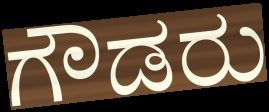
ಗೌಡರು